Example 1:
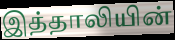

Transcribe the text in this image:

இத்தாலியின்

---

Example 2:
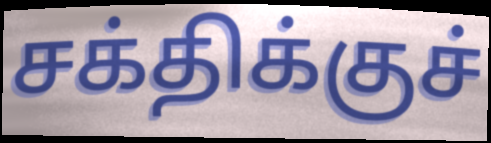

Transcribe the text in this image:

சக்திக்குச்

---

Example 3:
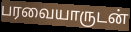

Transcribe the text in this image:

பரவையாருடன்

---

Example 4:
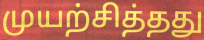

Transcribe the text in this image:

முயற்சித்தது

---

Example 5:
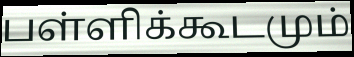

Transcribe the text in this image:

பள்ளிக்கூடமும்